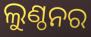
ଲୁଣ୍ଠନର